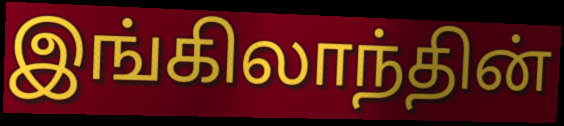
இங்கிலாந்தின்